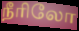
நீரிலோ